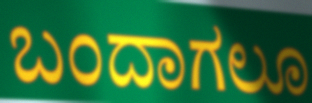
ಬಂದಾಗಲೂ